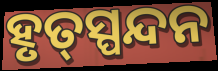
ହୃତ୍‍ସ୍ପନ୍ଦନ